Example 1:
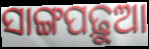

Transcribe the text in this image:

ସାଙ୍ଗପଢ଼ୁଆ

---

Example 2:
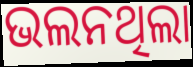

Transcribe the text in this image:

ଭଲନଥିଲା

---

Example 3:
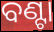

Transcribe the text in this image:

ବଣ୍ଟା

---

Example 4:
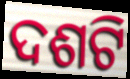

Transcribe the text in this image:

ଦଶଟି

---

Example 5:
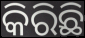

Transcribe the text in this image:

କିରିଛି